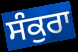
ਸੰਕੁਰਾ